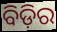
ବିଡ଼ିର